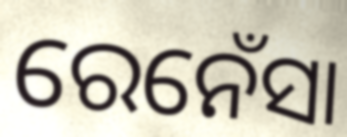
ରେନେଁସା